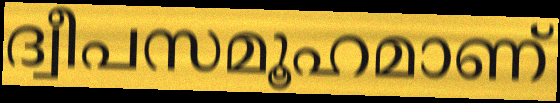
ദ്വീപസമൂഹമാണ്